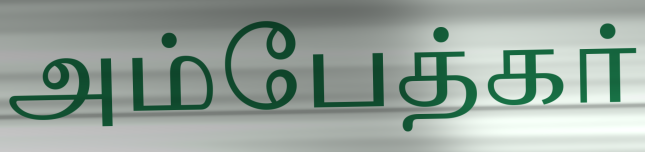
அம்பேத்கர்